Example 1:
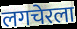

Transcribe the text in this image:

लगचेरला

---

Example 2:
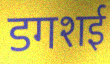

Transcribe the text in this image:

डगशई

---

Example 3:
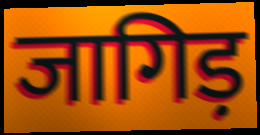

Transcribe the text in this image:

जागिड़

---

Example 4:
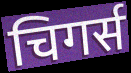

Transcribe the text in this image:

चिगर्स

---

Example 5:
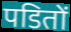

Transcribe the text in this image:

पडितों